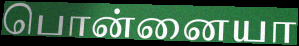
பொன்னையா